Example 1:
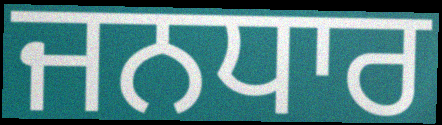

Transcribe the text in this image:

ਜਨਧਾਰ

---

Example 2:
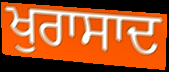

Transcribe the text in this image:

ਖੁਰਾਸਾਦ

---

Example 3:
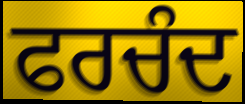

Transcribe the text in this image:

ਫਰਚੰਦ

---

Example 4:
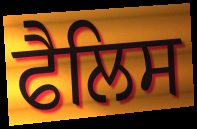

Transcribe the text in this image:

ਫੈਲਿਸ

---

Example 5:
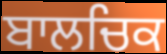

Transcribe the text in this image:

ਬਾਲਚਿਕ